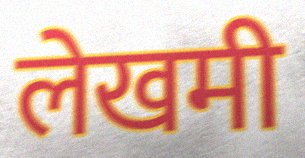
लेखमी